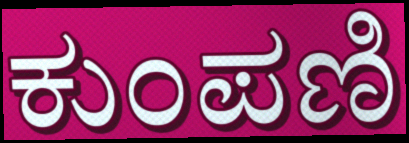
ಕುಂಪಣಿ